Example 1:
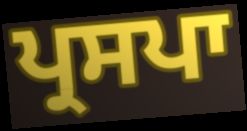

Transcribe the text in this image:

ਪ੍ਰਸਪਾ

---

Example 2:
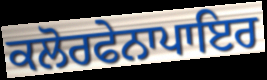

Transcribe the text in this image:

ਕਲੋਰਫੇਨਾਪਾਇਰ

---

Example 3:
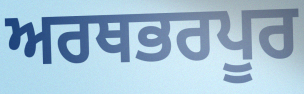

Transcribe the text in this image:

ਅਰਥਭਰਪੂਰ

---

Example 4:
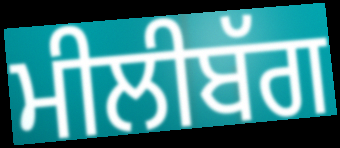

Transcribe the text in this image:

ਮੀਲੀਬੱਗ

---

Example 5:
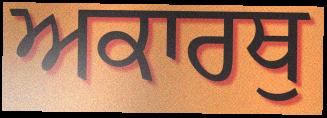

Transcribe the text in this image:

ਅਕਾਰਥੁ